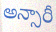
అన్సారీ